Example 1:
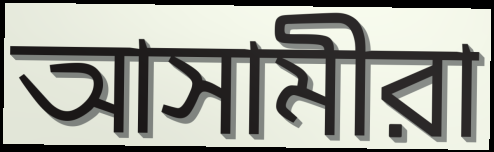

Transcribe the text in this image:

আসামীরা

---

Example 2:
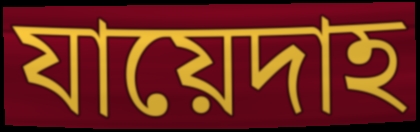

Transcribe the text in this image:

যায়েদাহ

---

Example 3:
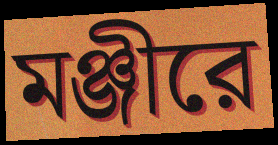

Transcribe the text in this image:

মঞ্জীরে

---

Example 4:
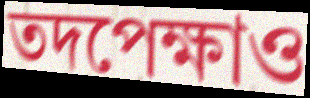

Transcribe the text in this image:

তদপেক্ষাও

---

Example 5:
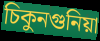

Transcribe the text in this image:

চিকুনগুনিয়া